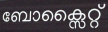
ബോക്സൈറ്റ്